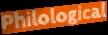
Philological